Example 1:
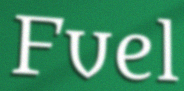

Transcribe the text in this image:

Fuel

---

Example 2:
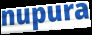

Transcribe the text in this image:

nupura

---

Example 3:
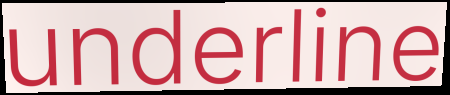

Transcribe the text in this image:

underline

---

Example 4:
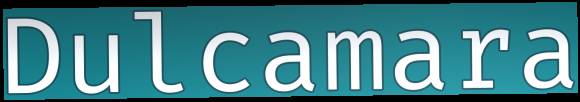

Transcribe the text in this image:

Dulcamara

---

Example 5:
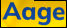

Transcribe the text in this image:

Aage